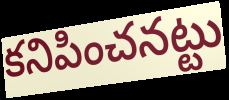
కనిపించనట్టు